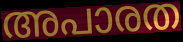
അപാരത